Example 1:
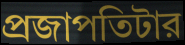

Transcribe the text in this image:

প্রজাপতিটার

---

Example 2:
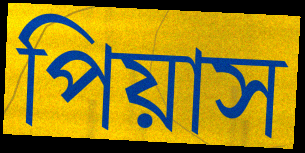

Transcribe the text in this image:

পিয়াস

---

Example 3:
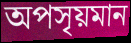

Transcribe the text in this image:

অপসৃয়মান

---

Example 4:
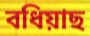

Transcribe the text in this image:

বধিয়াছ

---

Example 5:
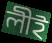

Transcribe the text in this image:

লীই